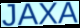
JAXA